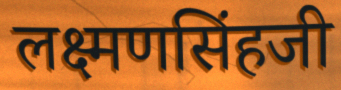
लक्ष्मणसिंहजी